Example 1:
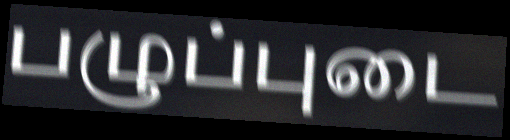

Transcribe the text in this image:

பழுப்புடை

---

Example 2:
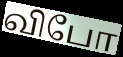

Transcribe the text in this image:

விபோ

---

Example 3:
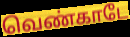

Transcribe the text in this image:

வெண்காடே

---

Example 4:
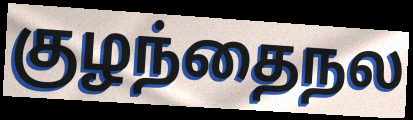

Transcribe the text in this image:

குழந்தைநல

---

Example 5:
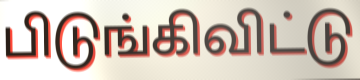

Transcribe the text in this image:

பிடுங்கிவிட்டு